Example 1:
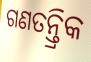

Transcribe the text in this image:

ଗଣତନ୍ତ୍ରିକ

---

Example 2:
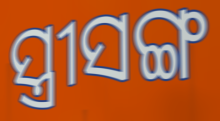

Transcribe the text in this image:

ସ୍ତ୍ରୀସଙ୍ଗ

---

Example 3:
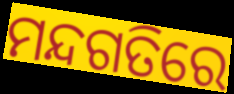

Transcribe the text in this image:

ମନ୍ଦଗତିରେ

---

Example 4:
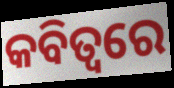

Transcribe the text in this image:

କବିତ୍ୱରେ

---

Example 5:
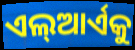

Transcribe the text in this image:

ଏଲ୍ଆର୍ଏକୁ